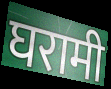
घरामी